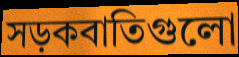
সড়কবাতিগুলো